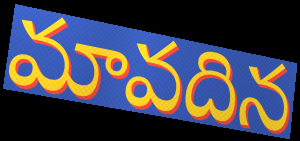
మావదిన